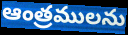
ఆంత్రములను